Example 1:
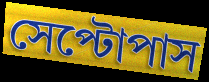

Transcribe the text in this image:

সেপ্টোপাস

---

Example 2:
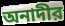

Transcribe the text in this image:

অনাদীর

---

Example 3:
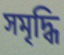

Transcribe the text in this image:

সমৃদ্ধি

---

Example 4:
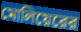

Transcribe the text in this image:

মোলিয়েরের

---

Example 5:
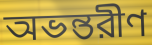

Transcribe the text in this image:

অভন্তরীণ